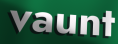
vaunt